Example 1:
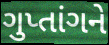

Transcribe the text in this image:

ગુપ્તાંગને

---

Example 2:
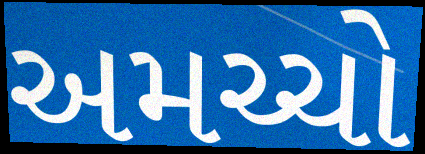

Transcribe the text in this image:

અમચ્ચો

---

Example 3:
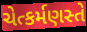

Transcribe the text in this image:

ચેત્કર્મણસ્તે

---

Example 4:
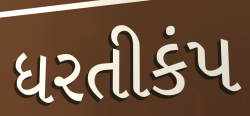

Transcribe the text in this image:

ધરતીકંપ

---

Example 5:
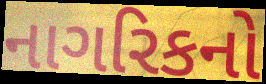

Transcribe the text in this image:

નાગરિકનો